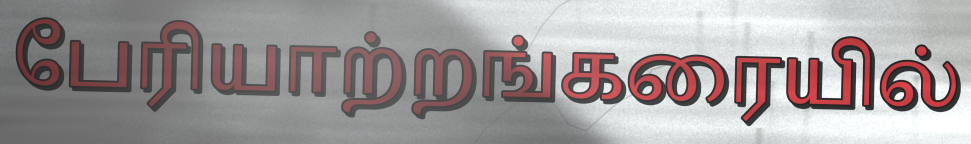
பேரியாற்றங்கரையில்